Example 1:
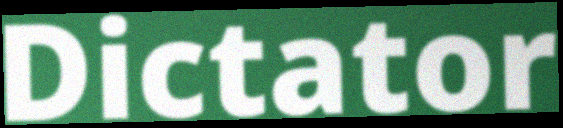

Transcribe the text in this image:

Dictator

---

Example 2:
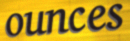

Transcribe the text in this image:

ounces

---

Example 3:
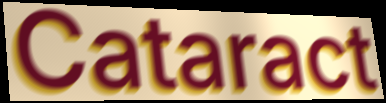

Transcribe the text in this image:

Cataract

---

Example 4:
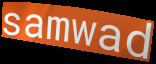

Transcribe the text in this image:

samwad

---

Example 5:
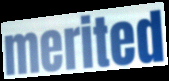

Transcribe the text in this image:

merited